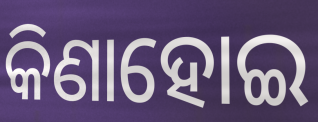
କିଣାହୋଇ